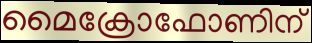
മൈക്രോഫോണിന്